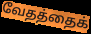
வேதத்தைக்